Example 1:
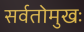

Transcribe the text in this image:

सर्वतोमुखः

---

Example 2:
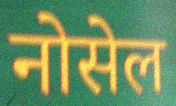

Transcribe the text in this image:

नोसेल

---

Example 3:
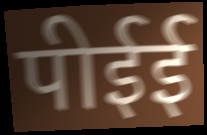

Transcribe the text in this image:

पीईई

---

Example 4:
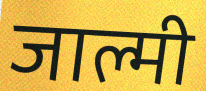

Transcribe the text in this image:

जाल्मी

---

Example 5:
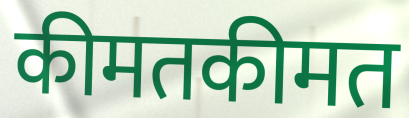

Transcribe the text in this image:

कीमतकीमत